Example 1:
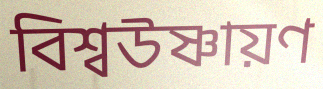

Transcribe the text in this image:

বিশ্বউষ্ণায়ণ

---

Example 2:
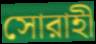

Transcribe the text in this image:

সোরাহী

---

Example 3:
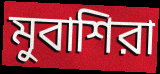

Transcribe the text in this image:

মুবাশিরা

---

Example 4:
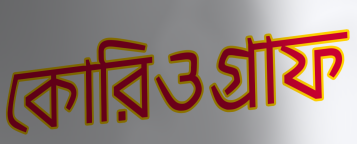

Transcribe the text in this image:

কোরিওগ্রাফ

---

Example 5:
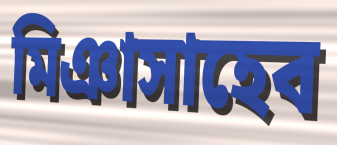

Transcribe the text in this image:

মিঞাসাহেব